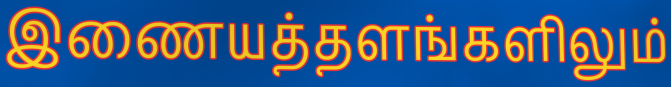
இணையத்தளங்களிலும்